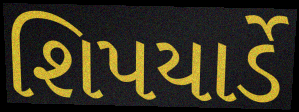
શિપયાર્ડે